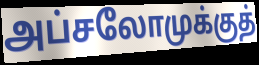
அப்சலோமுக்குத்